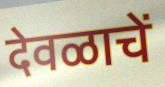
देवळाचें